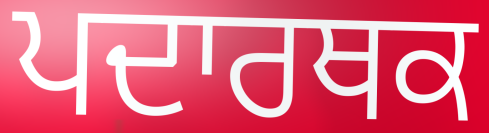
ਪਦਾਰਥਕ